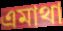
এমাথা